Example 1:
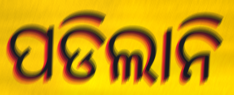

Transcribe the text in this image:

ପଡିଲାନି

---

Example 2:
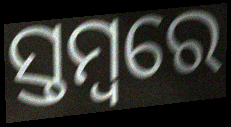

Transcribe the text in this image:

ସ୍ତମ୍ବରେ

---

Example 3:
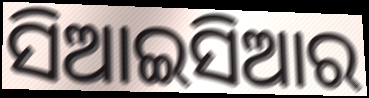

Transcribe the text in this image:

ସିଆଇସିଆର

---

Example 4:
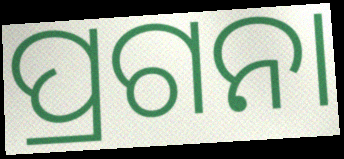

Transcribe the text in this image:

ପ୍ରଗନା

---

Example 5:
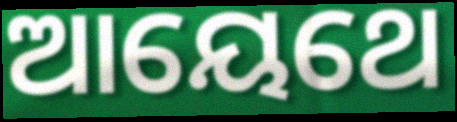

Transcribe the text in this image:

ଆୟେଥେ